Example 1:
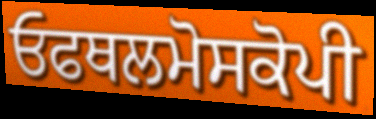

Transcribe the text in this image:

ਓਫਥਲਮੋਸਕੋਪੀ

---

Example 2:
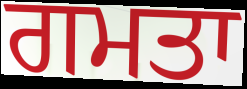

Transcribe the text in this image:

ਗਮਤਾ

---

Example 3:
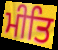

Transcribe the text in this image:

ਮੀਤਿ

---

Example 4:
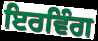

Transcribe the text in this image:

ਇਰਵਿੰਗ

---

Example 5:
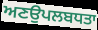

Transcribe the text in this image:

ਅਣਉਪਲਬਧਤਾ